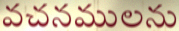
వచనములను